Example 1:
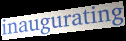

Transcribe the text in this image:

inaugurating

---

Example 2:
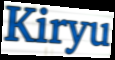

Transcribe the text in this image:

Kiryu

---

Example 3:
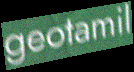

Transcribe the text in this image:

geotamil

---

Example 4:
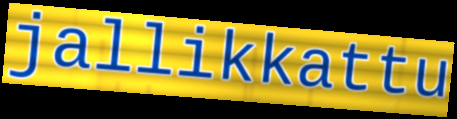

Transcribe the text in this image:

jallikkattu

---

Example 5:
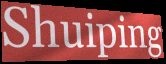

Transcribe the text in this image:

Shuiping